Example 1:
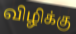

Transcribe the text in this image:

விழிக்கு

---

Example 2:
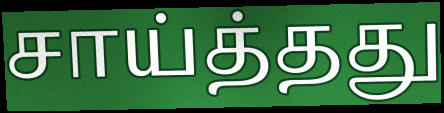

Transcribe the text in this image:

சாய்த்தது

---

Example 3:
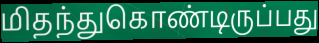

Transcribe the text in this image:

மிதந்துகொண்டிருப்பது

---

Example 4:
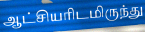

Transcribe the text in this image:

ஆட்சியரிடமிருந்து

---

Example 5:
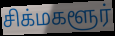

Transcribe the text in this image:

சிக்மகளூர்